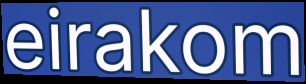
eirakom